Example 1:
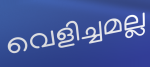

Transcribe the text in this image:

വെളിച്ചമല്ല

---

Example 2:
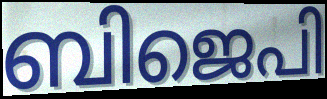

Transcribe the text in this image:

ബിജെപി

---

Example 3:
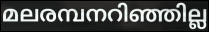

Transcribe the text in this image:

മലരമ്പനറിഞ്ഞില്ല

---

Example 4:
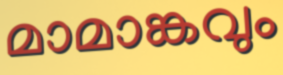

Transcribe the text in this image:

മാമാങ്കവും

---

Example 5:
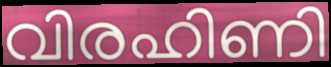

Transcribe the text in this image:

വിരഹിണി